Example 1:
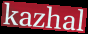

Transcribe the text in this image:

kazhal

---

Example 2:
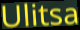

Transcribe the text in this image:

Ulitsa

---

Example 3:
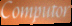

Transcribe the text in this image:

Computor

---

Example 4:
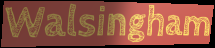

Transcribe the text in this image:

Walsingham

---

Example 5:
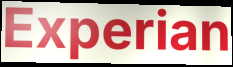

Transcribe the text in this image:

Experian